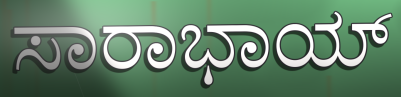
ಸಾರಾಭಾಯ್